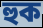
হুক